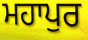
ਮਹਾਪੁਰ